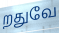
றதுவே